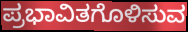
ಪ್ರಭಾವಿತಗೊಳಿಸುವ